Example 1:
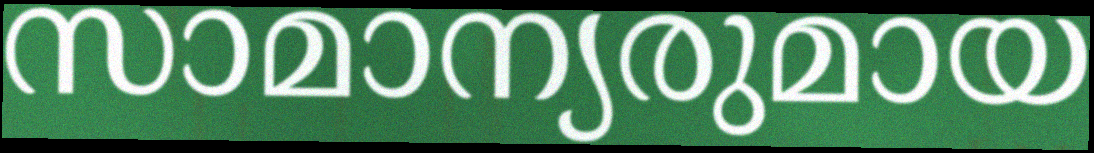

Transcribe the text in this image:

സാമാന്യരുമായ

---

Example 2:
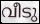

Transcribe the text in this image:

വീടു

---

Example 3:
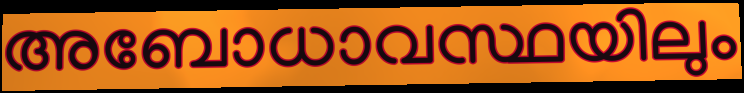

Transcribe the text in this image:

അബോധാവസ്ഥയിലും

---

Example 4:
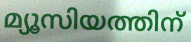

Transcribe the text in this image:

മ്യൂസിയത്തിന്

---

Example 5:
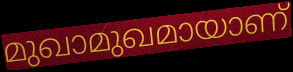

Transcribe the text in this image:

മുഖാമുഖമായാണ്